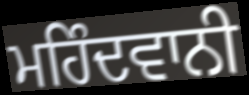
ਮਹਿੰਦਵਾਨੀ